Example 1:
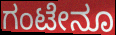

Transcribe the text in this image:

ಗಂಟೇನೂ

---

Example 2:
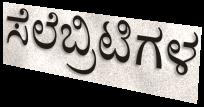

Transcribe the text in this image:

ಸೆಲೆಬ್ರಿಟಿಗಳ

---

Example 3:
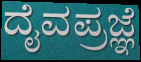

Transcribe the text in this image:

ದೈವಪ್ರಜ್ಞೆ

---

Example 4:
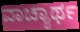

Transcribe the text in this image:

ವಾಚ್ಯಾರ್ಥ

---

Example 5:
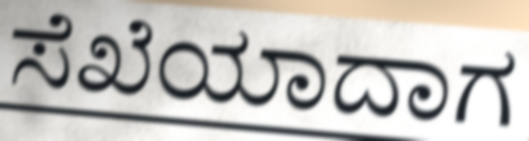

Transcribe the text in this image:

ಸೆಖೆಯಾದಾಗ